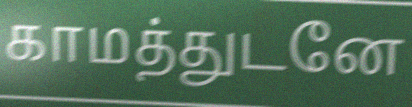
காமத்துடனே